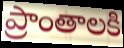
ప్రాంతాలకి